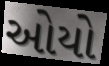
ઓયો